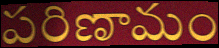
పరిణామం